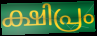
ക്ഷിപ്രം